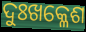
ଦୁଃଖକ୍ଳେଶ